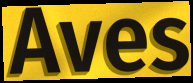
Aves